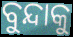
ବୁନ୍ଦାକୁ